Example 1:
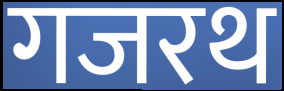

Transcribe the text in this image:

गजरथ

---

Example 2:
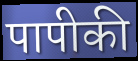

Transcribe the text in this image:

पापीकी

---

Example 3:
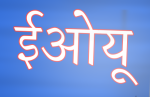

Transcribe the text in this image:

ईओयू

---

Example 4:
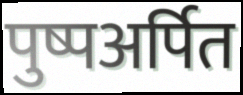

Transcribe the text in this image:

पुष्पअर्पित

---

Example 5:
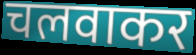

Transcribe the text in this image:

चलवाकर